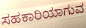
ಸಹಕಾರಿಯಾಗುವ